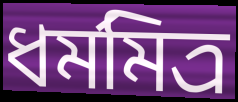
ধর্মমিত্র